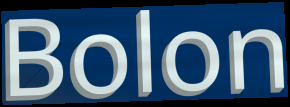
Bolon